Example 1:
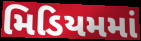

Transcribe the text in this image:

મિડિયમમાં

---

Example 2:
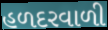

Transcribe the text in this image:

હળદરવાળી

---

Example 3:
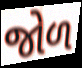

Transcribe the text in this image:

જોળ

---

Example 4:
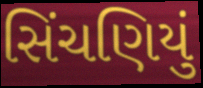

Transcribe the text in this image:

સિંચણિયું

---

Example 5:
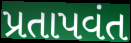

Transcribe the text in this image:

પ્રતાપવંત